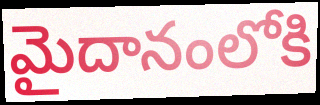
మైదానంలోకి